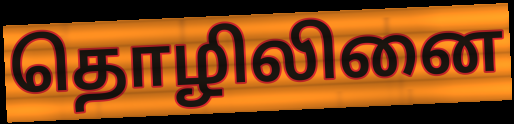
தொழிலினை